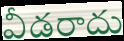
వీడరాదు